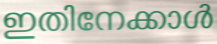
ഇതിനേക്കാൾ